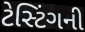
ટેસ્ટિંગની